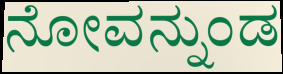
ನೋವನ್ನುಂಡ